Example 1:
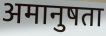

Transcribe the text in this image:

अमानुषता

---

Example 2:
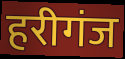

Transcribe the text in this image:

हरीगंज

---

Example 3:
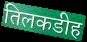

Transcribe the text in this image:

तिलकडीह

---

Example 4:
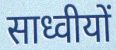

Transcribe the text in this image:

साध्वीयों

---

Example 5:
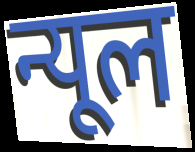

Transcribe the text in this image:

न्यूल